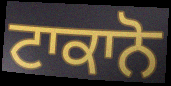
ਟਾਕਾਨੋ